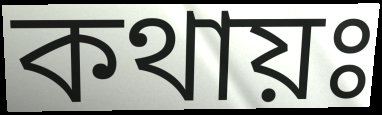
কথায়ঃ